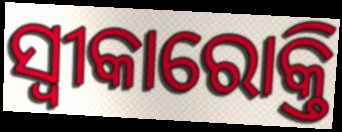
ସ୍ୱୀକାରୋକ୍ତି